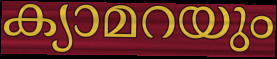
ക്യാമറയും